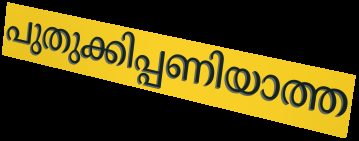
പുതുക്കിപ്പണിയാത്ത